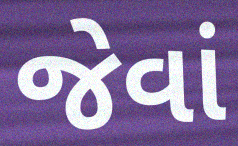
જેવાં